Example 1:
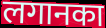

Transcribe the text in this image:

लगानका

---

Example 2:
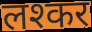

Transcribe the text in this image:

लश्कर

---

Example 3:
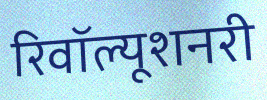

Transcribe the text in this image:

रिवॉल्यूशनरी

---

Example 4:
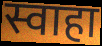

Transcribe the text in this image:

स्वाहा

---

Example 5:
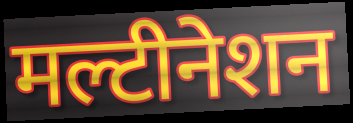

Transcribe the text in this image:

मल्टीनेशन